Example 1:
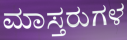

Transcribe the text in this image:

ಮಾಸ್ತರುಗಳ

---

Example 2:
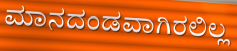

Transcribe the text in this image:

ಮಾನದಂಡವಾಗಿರಲಿಲ್ಲ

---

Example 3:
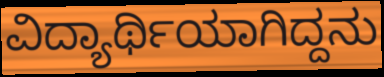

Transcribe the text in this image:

ವಿದ್ಯಾರ್ಥಿಯಾಗಿದ್ದನು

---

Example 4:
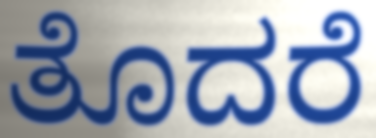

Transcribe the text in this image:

ತೊದರೆ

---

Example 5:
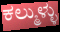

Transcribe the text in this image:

ಕಲ್ಮುಳ್ಳು